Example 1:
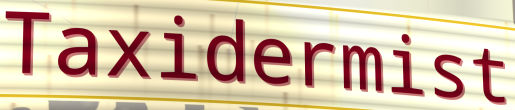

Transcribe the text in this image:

Taxidermist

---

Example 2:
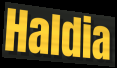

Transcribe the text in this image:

Haldia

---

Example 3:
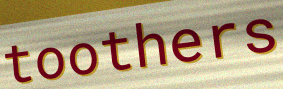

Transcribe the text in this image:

toothers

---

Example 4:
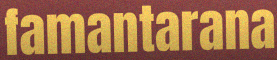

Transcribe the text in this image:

famantarana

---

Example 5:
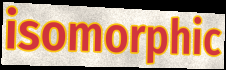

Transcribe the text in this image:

isomorphic